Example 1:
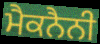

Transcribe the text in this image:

ਮੈਕਨੈਨੀ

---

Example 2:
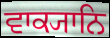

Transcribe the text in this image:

ਵਾਕ੍ਯਾਨਿ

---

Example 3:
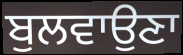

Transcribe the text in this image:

ਬੁਲਵਾਉਣਾ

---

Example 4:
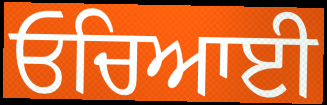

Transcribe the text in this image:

ਓਚਿਆਈ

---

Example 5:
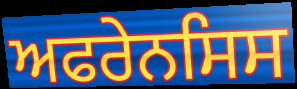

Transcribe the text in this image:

ਅਫਰੇਨਸਿਸ